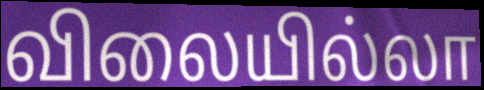
விலையில்லா